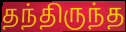
தந்திருந்த